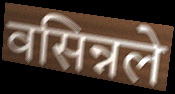
वसिन्नले